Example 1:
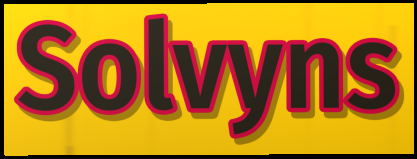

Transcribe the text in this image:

Solvyns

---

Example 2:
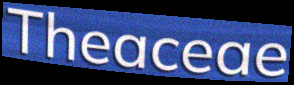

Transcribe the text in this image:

Theaceae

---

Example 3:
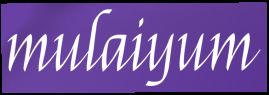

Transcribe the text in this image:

mulaiyum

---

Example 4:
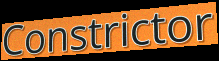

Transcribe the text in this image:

Constrictor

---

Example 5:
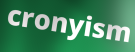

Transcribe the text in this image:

cronyism